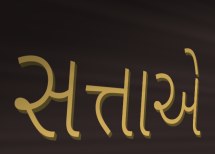
સત્તાએ